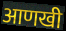
आणखी